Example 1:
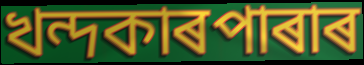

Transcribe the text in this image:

খন্দকাৰপাৰাৰ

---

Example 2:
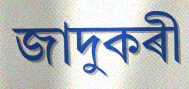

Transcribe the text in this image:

জাদুকৰী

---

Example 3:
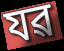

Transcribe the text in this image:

যৱ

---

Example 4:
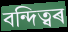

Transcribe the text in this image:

বন্দিত্বৰ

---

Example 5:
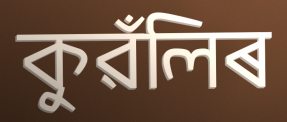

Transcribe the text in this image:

কুৱঁলিৰ